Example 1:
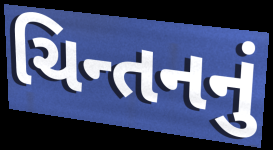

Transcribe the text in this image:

ચિન્તનનું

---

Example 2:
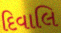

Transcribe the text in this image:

દિવાલિ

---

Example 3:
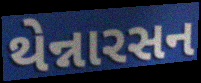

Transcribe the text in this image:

થેન્નારસન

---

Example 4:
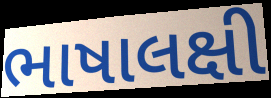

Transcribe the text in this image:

ભાષાલક્ષી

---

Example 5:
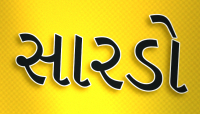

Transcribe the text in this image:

સારડો